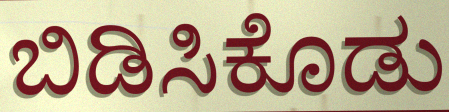
ಬಿಡಿಸಿಕೊಡು